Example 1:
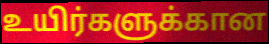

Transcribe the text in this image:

உயிர்களுக்கான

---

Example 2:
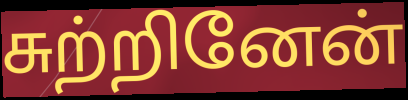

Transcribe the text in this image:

சுற்றினேன்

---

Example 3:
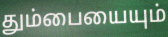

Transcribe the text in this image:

தும்பையையும்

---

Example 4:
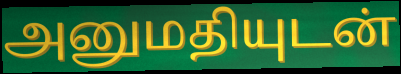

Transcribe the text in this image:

அனுமதியுடன்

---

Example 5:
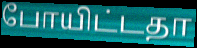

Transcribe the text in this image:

போயிட்டதா